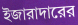
ইজারাদারের